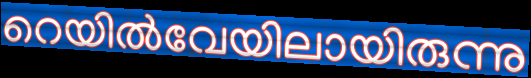
റെയിൽവേയിലായിരുന്നു